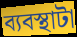
ব্যবস্থাটা